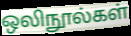
ஒலிநூல்கள்